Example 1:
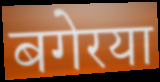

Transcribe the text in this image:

बगेरया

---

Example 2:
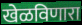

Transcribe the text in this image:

खेळविणारा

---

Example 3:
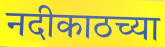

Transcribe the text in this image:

नदीकाठच्या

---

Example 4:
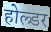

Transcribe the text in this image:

होल्डर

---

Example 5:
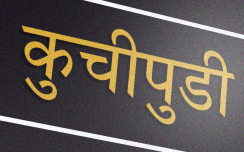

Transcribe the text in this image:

कुचीपुडी